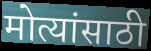
मोत्यांसाठी